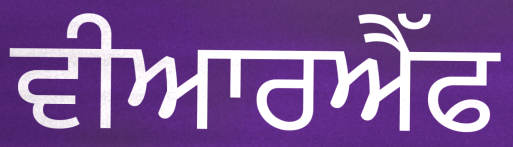
ਵੀਆਰਐੱਫ